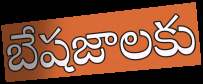
బేషజాలకు